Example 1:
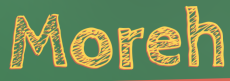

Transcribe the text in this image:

Moreh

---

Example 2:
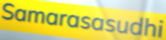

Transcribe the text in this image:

Samarasasudhi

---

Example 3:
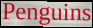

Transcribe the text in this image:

Penguins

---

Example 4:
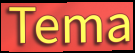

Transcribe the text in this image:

Tema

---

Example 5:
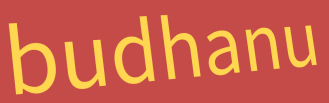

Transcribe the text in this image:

budhanu